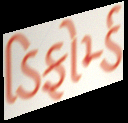
ડિફોર્મ્ડ